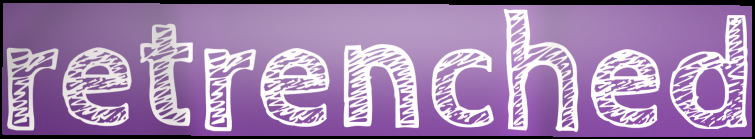
retrenched